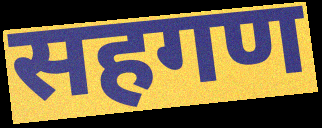
सहगण